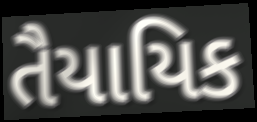
તૈયાયિક